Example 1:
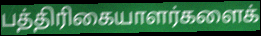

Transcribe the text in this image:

பத்திரிகையாளர்களைக்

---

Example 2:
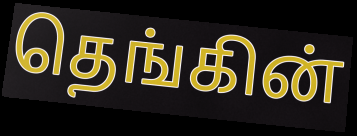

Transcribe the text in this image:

தெங்கின்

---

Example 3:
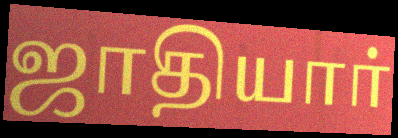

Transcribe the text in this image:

ஜாதியார்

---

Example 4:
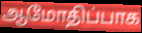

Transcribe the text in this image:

ஆமோதிப்பாக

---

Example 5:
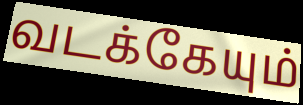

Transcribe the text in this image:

வடக்கேயும்